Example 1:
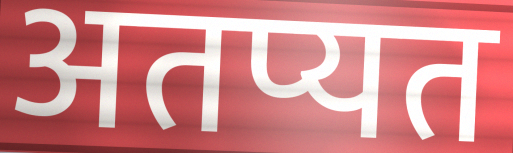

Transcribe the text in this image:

अतप्यत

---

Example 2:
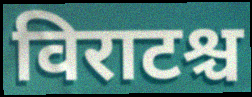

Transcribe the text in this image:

विराटश्च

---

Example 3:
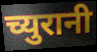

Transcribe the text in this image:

च्युरानी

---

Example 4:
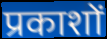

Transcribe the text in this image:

प्रकाशों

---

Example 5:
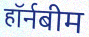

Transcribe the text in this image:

हॉर्नबीम